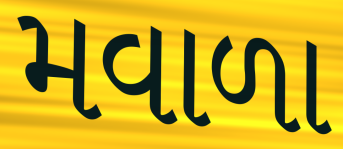
મવાળા